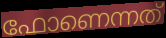
ഫോണെന്നത്